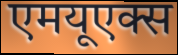
एमयूएक्स